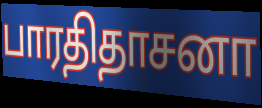
பாரதிதாசனா